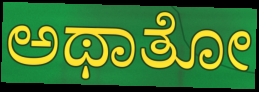
ಅಥಾತೋ